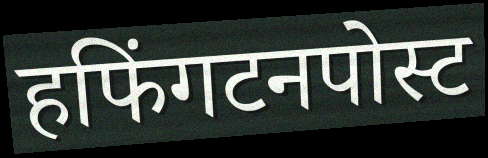
हफिंगटनपोस्ट